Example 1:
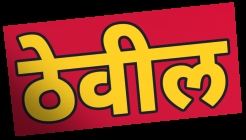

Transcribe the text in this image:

ठेवील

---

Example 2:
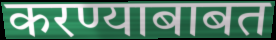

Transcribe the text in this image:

करण्याबाबत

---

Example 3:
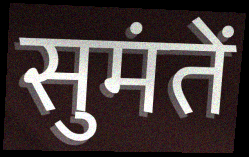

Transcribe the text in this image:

सुमंतें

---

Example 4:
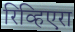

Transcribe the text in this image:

रिव्हिएरा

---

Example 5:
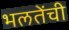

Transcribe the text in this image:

भलतेंची